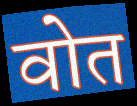
वोत